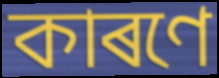
কাৰণে